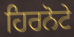
ਹਿਰਨੋਟੇ